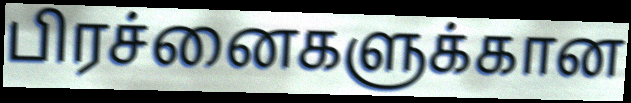
பிரச்னைகளுக்கான